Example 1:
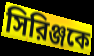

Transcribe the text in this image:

সিরিঞ্জকে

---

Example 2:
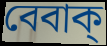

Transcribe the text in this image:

বেবাক্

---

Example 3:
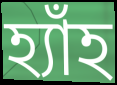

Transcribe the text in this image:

হ্যাঁহ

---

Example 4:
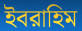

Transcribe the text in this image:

ইবরাহিম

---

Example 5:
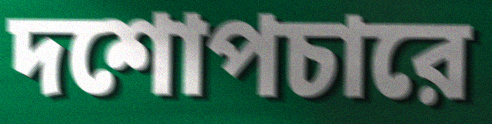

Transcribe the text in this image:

দশোপচারে